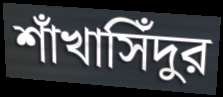
শাঁখাসিঁদুর